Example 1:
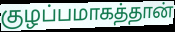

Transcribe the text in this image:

குழப்பமாகத்தான்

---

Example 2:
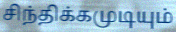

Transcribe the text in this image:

சிந்திக்கமுடியும்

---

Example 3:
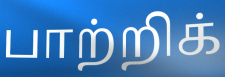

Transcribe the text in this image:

பாற்றிக்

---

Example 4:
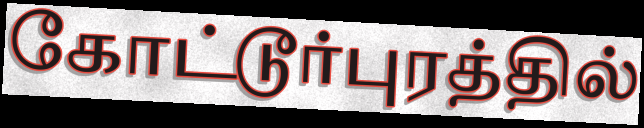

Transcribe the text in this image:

கோட்டூர்புரத்தில்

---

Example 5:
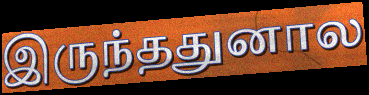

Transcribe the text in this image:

இருந்ததுனால